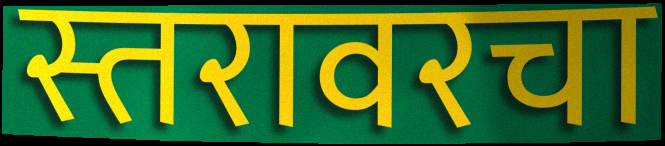
स्तरावरचा